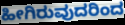
ಹೀಗಿರುವುದರಿಂದ